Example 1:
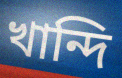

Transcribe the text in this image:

খান্দি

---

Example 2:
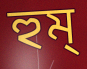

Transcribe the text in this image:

হুম্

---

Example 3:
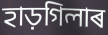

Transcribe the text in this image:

হাড়গিলাৰ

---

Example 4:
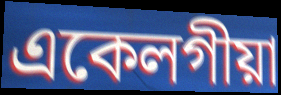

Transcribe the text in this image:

একেলগীয়া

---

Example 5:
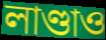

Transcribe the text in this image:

লাণ্ডাও